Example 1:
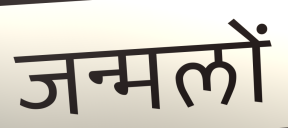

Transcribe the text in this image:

जन्मलों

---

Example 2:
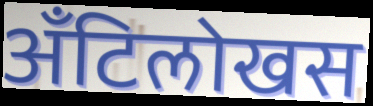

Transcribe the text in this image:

अँटिलोखस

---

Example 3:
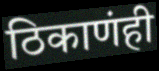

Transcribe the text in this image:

ठिकाणंही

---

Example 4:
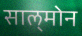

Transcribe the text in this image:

साल्मोन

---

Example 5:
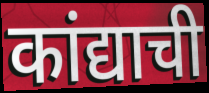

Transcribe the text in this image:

कांद्याची